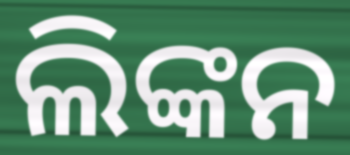
ଲିଙ୍କନ